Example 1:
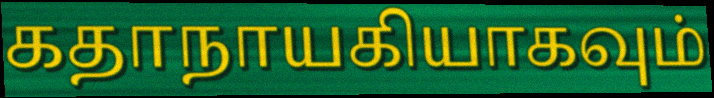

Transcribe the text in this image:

கதாநாயகியாகவும்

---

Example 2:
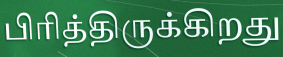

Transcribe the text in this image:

பிரித்திருக்கிறது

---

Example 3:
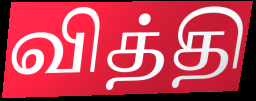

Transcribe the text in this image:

வித்தி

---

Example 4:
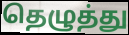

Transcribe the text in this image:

தெழுத்து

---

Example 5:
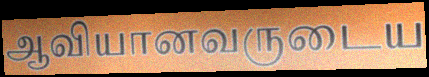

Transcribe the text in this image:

ஆவியானவருடைய